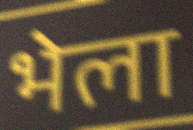
भेला